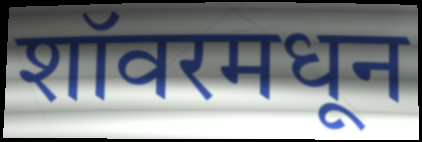
शॉवरमधून